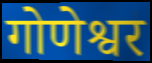
गोणेश्वर